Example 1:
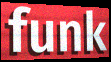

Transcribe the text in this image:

funk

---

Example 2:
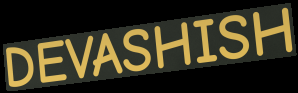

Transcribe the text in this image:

DEVASHISH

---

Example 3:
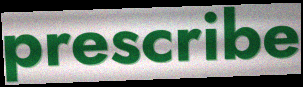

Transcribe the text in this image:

prescribe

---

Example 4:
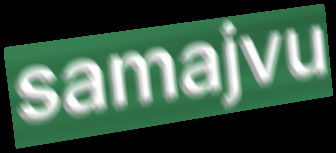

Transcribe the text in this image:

samajvu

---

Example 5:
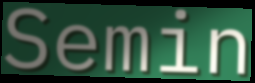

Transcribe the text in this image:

Semin